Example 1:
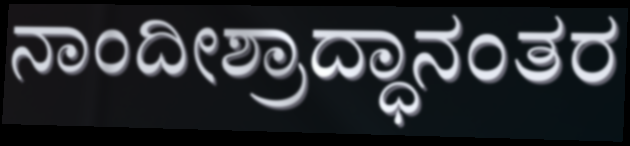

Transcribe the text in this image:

ನಾಂದೀಶ್ರಾದ್ಧಾನಂತರ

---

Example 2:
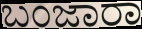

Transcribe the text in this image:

ಬಂಜಾರಾ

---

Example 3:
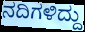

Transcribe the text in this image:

ನದಿಗಳಿದ್ದು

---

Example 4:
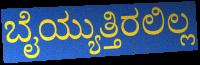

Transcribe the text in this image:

ಬೈಯ್ಯುತ್ತಿರಲಿಲ್ಲ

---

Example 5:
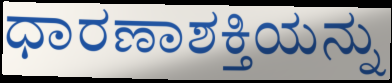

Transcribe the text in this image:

ಧಾರಣಾಶಕ್ತಿಯನ್ನು